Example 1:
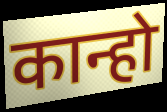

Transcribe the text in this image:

कान्हो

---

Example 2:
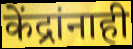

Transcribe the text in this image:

केंद्रांनाही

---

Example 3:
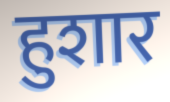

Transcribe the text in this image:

हुशार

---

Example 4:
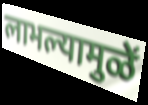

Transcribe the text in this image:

लाभल्यामुळें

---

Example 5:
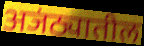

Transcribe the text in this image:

अजंठ्यातील